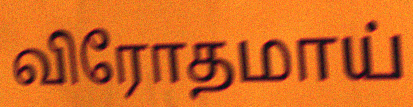
விரோதமாய்